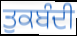
ਤੁਕਬੰਦੀ